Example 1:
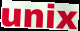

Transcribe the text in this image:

unix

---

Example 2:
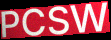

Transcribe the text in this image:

PCSW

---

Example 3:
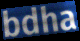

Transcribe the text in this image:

bdha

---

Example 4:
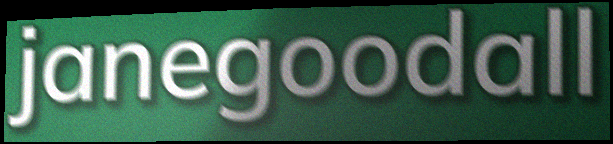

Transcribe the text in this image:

janegoodall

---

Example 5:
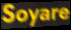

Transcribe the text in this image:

Soyare